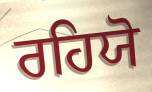
ਰਹਿਯੋ